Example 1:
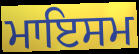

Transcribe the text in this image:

ਮਾਇਸਮ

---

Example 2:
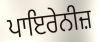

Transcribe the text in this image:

ਪਾਇਰੇਨੀਜ਼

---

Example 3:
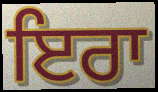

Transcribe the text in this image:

ਇਰਾ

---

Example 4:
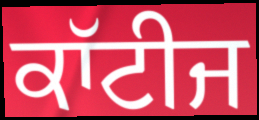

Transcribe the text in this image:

ਕਾੱਟੀਜ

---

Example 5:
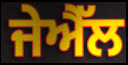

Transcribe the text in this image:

ਜੇਐੱਲ